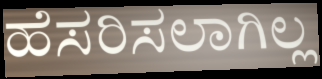
ಹೆಸರಿಸಲಾಗಿಲ್ಲ